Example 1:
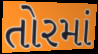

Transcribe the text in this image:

તોરમાં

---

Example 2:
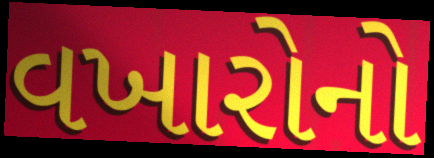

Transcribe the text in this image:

વખારોનો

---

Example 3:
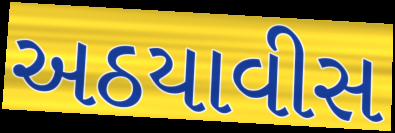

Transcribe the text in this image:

અઠયાવીસ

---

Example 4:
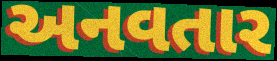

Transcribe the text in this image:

અનવતાર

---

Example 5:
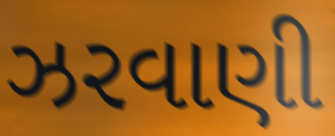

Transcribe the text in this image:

ઝરવાણી